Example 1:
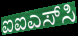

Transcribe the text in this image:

ಐಐಎಸ್‌ಸಿ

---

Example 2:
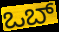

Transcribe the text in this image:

ಒಬ್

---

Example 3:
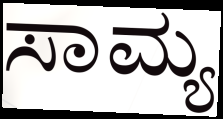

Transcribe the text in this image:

ಸಾಮ್ಯ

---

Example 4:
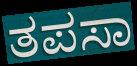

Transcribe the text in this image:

ತಪಸಾ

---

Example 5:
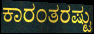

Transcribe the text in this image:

ಕಾರಂತರಷ್ಟು